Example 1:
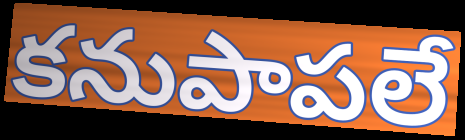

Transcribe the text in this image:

కనుపాపలే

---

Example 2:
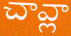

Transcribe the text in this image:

చావ్లా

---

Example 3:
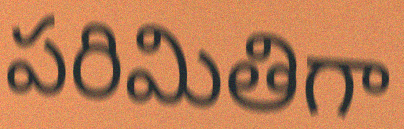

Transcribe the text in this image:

పరిమితిగా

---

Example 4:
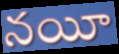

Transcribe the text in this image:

నయీ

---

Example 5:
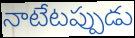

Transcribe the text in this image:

నాటేటప్పుడు